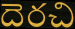
దెరచి